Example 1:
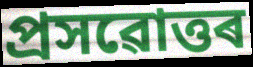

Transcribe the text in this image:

প্ৰসৱোত্তৰ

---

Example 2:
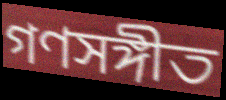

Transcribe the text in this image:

গণসঙ্গীত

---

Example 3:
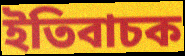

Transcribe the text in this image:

ইতিবাচক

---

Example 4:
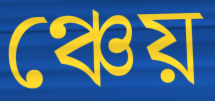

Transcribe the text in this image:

ঞ্চেয়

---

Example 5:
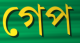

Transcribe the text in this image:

গেপ